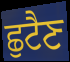
ਛੁਟੈਣ